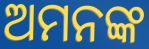
ଅମନଙ୍କ